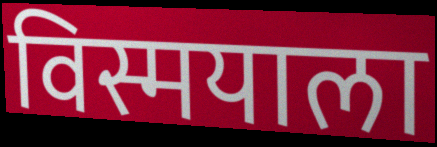
विस्मयाला